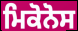
ਮਿਕੋਨੋਸ